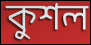
কুশল